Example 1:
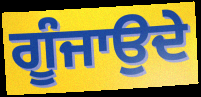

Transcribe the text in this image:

ਗੂੰਜਾਉਦੇ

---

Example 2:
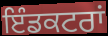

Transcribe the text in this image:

ਇੰਡਕਟਰਾਂ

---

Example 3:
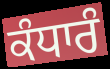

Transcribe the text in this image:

ਕੰਧਾਰੰ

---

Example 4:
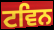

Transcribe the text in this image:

ਟਵਿਨ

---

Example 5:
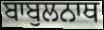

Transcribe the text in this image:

ਬਾਬੁਲਨਾਥ